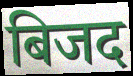
बिजद